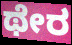
ಥೇರ